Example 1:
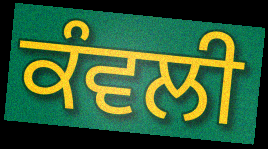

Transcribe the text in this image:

ਕੰਵਲੀ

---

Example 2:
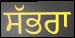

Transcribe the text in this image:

ਸੱਭਰਾ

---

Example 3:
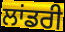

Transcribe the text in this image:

ਲਾਂਡਰੀ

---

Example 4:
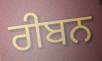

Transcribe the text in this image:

ਰੀਬਨ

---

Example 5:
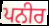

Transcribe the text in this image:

ਪਨੀਰ